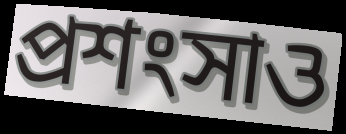
প্রশংসাও